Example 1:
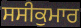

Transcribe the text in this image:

ਸਸੀਕੁਮਾਰ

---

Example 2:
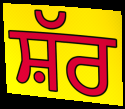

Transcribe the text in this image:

ਸ਼ੱਰ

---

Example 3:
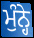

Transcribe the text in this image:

ਮੁੰਨ੍ਹੇ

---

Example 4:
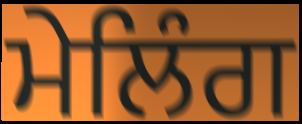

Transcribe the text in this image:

ਮੇਲਿੰਗ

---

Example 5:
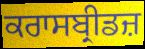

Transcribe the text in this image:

ਕਰਾਸਬ੍ਰੀਡਜ਼